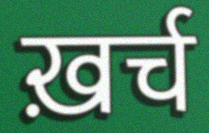
ख़र्च